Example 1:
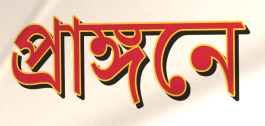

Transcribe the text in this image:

প্রাঙ্গনে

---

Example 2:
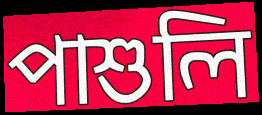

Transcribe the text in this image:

পাশুলি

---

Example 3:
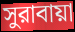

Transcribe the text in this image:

সুরাবায়া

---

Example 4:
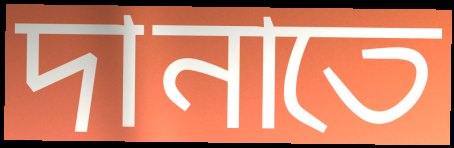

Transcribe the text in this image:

দানাতে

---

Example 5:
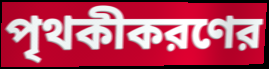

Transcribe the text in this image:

পৃথকীকরণের